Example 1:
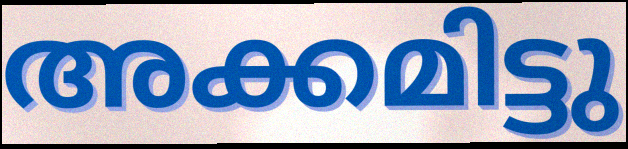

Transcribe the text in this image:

അക്കമിട്ടു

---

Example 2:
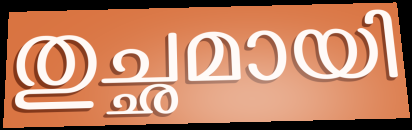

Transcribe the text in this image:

തുച്ഛമായി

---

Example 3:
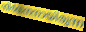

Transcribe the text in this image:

നിർധനനായിരുന്ന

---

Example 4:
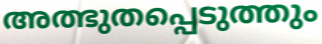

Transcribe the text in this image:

അത്ഭുതപ്പെടുത്തും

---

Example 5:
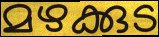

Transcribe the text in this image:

മഴക്കുട